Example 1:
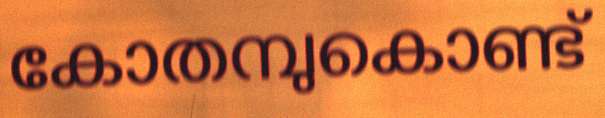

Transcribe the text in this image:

കോതമ്പുകൊണ്ട്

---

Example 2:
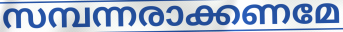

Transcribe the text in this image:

സമ്പന്നരാക്കണമേ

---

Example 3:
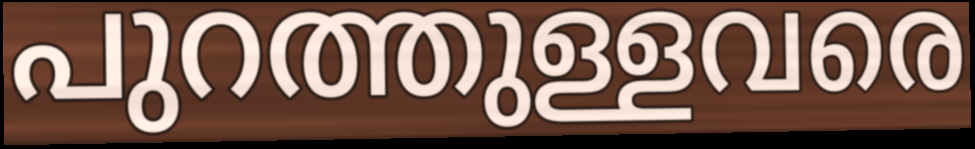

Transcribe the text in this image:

പുറത്തുള്ളവരെ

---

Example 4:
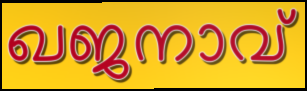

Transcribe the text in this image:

ഖജനാവ്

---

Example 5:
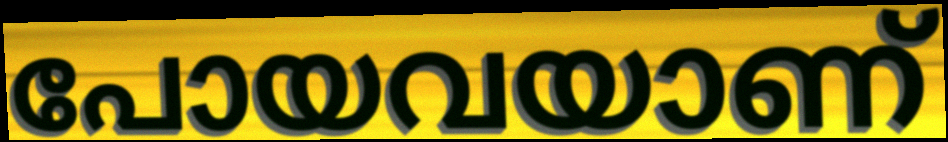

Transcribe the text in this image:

പോയവയാണ്